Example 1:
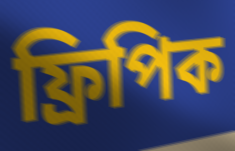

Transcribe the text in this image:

ফ্রিপিক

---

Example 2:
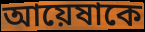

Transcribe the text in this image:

আয়েষাকে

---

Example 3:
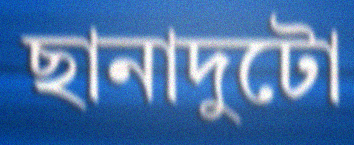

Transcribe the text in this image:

ছানাদুটো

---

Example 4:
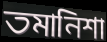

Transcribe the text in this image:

তমানিশা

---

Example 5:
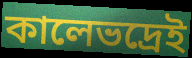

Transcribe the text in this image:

কালেভদ্রেই